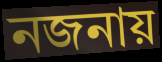
নজনায়